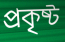
প্ৰকৃষ্ট